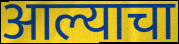
आल्‍याचा